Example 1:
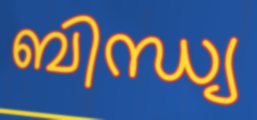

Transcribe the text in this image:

ബിന്ധ്യ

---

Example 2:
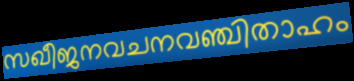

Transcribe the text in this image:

സഖീജനവചനവഞ്ചിതാഹം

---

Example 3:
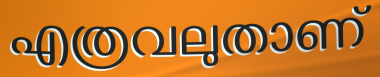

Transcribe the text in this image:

എത്രവലുതാണ്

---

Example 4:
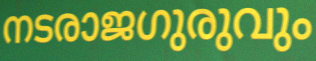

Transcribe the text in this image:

നടരാജഗുരുവും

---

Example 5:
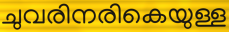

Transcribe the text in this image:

ചുവരിനരികെയുള്ള